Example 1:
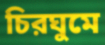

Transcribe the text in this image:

চিরঘুমে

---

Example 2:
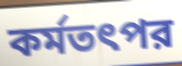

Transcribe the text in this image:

কর্মতৎপর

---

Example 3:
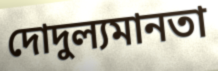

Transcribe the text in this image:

দোদুল্যমানতা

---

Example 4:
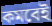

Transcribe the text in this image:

কমবেই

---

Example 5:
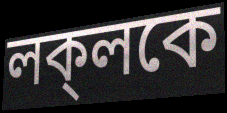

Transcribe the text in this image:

লক্‌লকে